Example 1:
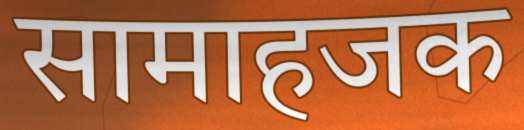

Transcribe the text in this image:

सामाहजक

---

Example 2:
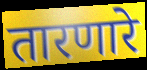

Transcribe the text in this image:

तारणारे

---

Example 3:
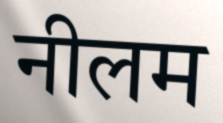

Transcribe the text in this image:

नीलम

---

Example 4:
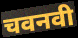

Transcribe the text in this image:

चवनवी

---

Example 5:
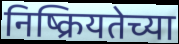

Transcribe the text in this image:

निष्क्रियतेच्या